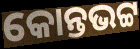
କୋନ୍ତଭଟ୍ଟ